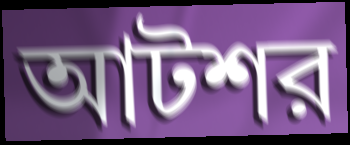
আটশর